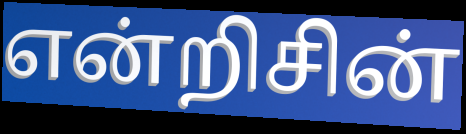
என்றிசின்